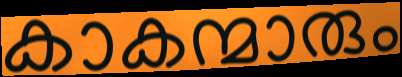
കാകന്മാരും